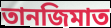
তানজিমাত